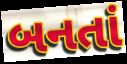
બનતાં